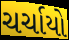
ચર્ચાયો